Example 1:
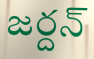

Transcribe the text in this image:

జర్దన్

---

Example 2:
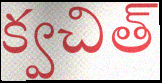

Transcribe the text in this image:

క్వచిత్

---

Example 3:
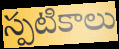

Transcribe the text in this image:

స్పటికాలు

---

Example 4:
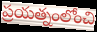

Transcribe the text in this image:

ప్రయత్నంలోంచి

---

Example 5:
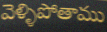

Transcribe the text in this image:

వెళ్ళిపోతాము